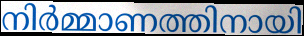
നിർമ്മാണത്തിനായി